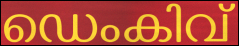
ഡെംകിവ്